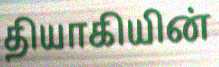
தியாகியின்